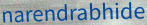
narendrabhide